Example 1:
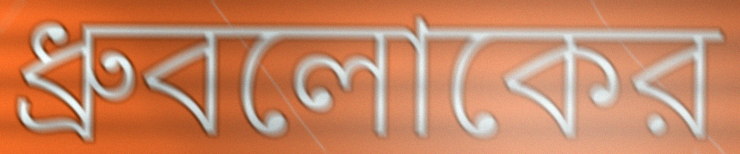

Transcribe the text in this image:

ধ্রুবলোকের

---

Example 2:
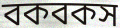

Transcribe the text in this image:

বকবকস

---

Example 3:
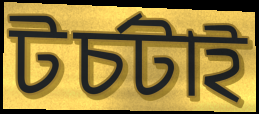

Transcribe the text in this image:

টর্চটাই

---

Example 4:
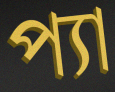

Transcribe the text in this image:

প্যা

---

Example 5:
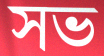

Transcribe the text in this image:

সভ